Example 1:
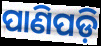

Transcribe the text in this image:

ପାଣିପଡ଼ି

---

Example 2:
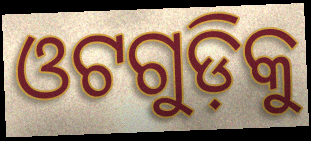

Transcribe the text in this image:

ଓଟଗୁଡ଼ିକୁ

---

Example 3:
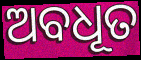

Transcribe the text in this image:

ଅବଧୂତ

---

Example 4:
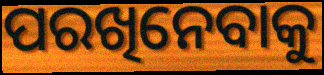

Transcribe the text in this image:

ପରଖିନେବାକୁ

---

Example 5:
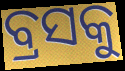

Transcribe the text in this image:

ବ୍ରସକୁ